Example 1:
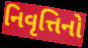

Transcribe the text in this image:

નિવૃત્તિનો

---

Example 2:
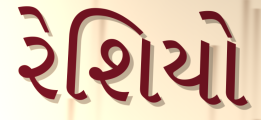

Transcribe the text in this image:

રેશિયો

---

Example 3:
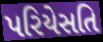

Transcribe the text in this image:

પરિયેસતિ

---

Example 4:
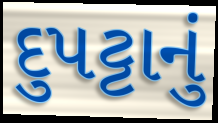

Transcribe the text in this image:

દુપટ્ટાનું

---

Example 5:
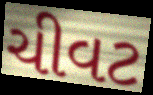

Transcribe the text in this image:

ચીવટ